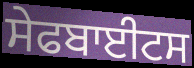
ਸੇਫਬਾਈਟਸ